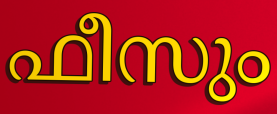
ഫീസും